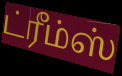
ட்ரீம்ஸ்